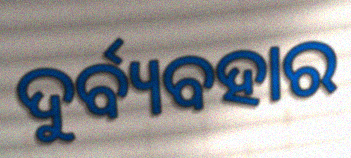
ଦୁର୍ବ୍ୟବହାର